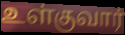
உள்குவார்